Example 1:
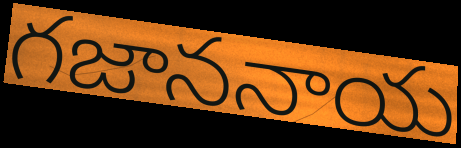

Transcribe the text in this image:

గజాననాయ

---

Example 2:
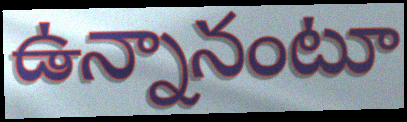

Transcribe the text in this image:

ఉన్నానంటూ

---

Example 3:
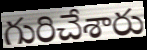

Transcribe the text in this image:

గురిచేశారు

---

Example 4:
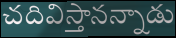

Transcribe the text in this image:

చదివిస్తానన్నాడు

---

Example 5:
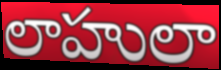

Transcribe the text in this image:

లాహులా